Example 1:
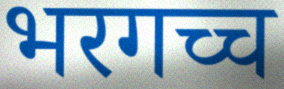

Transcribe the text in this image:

भरगच्च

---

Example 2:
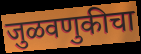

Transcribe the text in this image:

जुळवणुकीचा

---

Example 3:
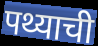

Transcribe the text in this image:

पथ्याची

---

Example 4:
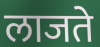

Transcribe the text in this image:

लाजते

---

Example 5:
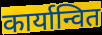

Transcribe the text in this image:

कार्यान्वित